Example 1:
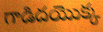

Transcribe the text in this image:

గాడిదయొక్క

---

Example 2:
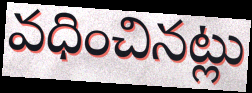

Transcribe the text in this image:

వధించినట్లు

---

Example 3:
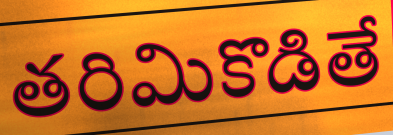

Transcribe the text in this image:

తరిమికొడితే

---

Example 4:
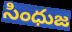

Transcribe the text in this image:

సింధుజ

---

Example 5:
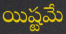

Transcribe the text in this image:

యిష్టమే